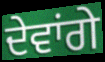
ਦੇਵਾਂਗੇ